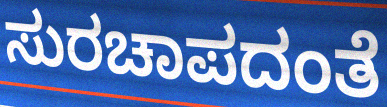
ಸುರಚಾಪದಂತೆ